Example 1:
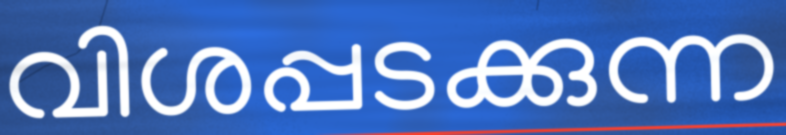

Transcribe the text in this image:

വിശപ്പടക്കുന്ന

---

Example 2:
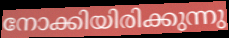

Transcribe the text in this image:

നോക്കിയിരിക്കുന്നു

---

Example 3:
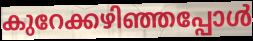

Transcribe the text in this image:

കുറേക്കഴിഞ്ഞപ്പോൾ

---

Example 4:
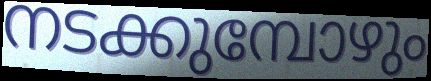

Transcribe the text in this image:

നടക്കുമ്പോഴും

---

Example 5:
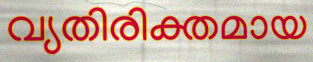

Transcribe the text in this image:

വ്യതിരിക്തമായ